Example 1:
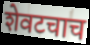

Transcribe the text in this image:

शेवटचाच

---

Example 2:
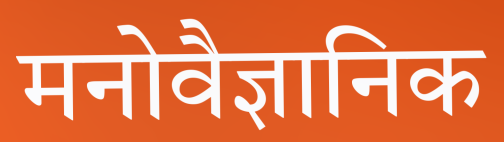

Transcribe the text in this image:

मनोवैज्ञानिक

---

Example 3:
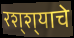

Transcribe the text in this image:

रश्श्याचे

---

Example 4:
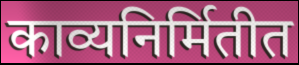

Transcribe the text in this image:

काव्यनिर्मितीत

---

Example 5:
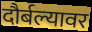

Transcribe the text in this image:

दौर्बल्यावर